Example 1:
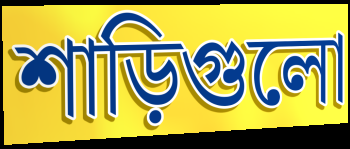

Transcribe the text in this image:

শাড়িগুলো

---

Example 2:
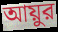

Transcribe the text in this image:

আয়ুর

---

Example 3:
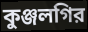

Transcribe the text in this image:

কুঞ্জলগির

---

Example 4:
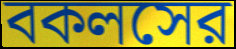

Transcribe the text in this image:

বকলসের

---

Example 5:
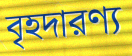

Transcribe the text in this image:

বৃহদারণ্য